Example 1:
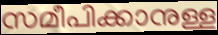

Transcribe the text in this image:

സമീപിക്കാനുള്ള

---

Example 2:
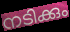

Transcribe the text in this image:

നടിക്കും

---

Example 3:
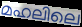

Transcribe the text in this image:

മഹലിലെ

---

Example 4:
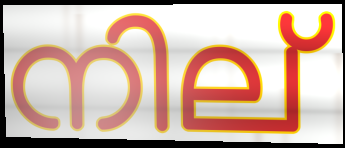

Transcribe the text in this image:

നില്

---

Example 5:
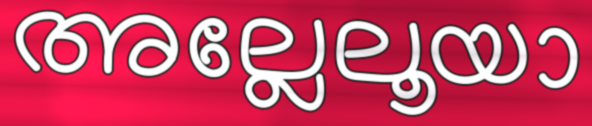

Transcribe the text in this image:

അല്ലേലൂയാ